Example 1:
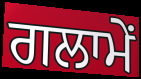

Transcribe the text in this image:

ਗਲਾਮੇਂ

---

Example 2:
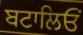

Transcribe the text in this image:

ਬਟਾਲਿਓਂ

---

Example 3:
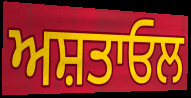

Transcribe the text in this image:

ਅਸ਼ਤਾਓਲ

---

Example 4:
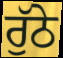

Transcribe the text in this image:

ਰੁੱਠੇ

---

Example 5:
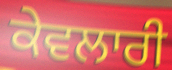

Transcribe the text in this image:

ਕੇਵਲਾਰੀ